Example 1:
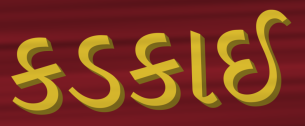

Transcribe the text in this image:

કડકાઈ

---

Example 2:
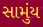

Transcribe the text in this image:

સામુંય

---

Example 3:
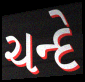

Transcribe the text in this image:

ચન્દે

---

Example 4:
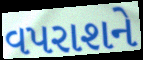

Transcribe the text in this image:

વપરાશને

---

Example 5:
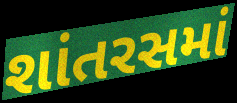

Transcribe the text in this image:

શાંતરસમાં